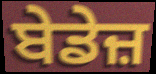
ਬੇਡੇਜ਼